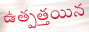
ఉత్పత్తయిన